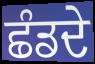
ਛੰਡਦੇ